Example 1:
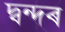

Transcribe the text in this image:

দ্বন্দৰ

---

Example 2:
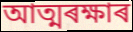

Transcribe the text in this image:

আত্মৰক্ষাৰ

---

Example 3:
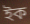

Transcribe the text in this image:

ইক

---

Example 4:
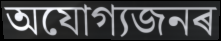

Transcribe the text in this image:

অযোগ্যজনৰ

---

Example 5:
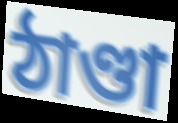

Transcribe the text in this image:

ঠাণ্ডা